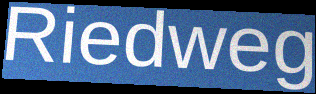
Riedweg